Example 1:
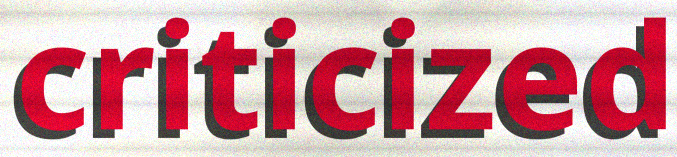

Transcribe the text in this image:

criticized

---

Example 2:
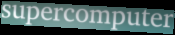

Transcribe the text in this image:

supercomputer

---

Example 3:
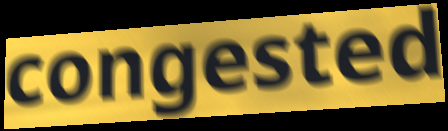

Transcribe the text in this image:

congested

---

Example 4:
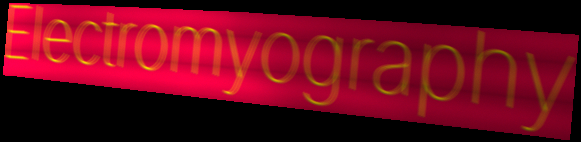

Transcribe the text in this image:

Electromyography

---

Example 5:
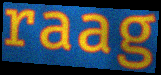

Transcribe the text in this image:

raag